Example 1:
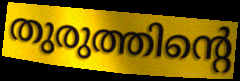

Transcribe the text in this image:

തുരുത്തിന്റെ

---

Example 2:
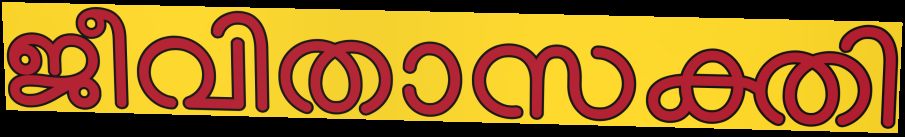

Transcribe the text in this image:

ജീവിതാസക്തി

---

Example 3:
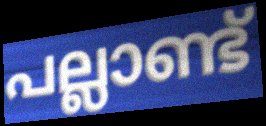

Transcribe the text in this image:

പല്ലാണ്ട്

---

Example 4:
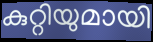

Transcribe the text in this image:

കുറ്റിയുമായി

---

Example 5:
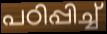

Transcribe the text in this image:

പഠിപ്പിച്ച്